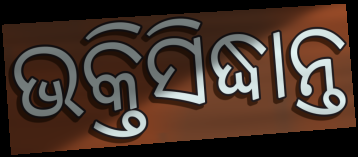
ଭକ୍ତିସିଦ୍ଧାନ୍ତ